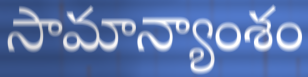
సామాన్యాంశం